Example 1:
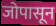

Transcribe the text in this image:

जोपासून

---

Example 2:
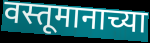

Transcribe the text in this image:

वस्तूमानाच्या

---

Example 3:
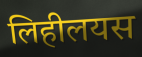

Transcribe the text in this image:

लिहीलयस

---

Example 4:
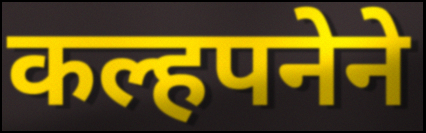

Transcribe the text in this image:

कल्हपनेने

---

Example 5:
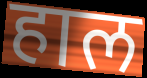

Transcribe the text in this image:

हाल